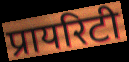
प्रायरिटी